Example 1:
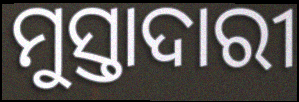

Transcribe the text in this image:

ମୁସ୍ତାଦାରୀ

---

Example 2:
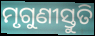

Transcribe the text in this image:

ମୃଗୁଣୀସ୍ତୁତି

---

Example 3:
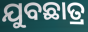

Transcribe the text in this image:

ଯୁବଛାତ୍ର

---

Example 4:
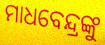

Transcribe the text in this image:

ମାଧବେନ୍ଦ୍ରଙ୍କୁ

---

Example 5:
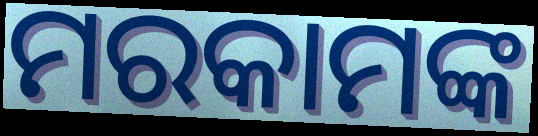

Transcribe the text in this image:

ମରକାମଙ୍କ